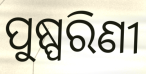
ପୁଷ୍ପରିଣୀ